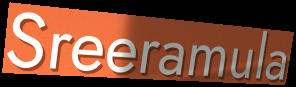
Sreeramula